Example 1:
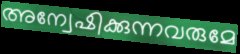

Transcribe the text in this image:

അന്വേഷിക്കുന്നവരുമേ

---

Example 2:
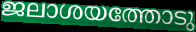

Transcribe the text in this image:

ജലാശയത്തോടു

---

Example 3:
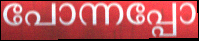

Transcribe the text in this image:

പോന്നപ്പോ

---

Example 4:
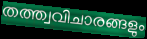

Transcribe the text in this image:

തത്ത്വവിചാരങ്ങളും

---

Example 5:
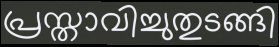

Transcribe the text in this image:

പ്രസ്താവിച്ചുതുടങ്ങി